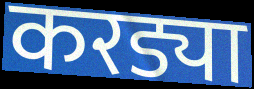
करड्या